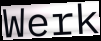
Werk